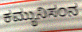
ಕಮ್ಯುನಿಸಂನ